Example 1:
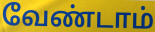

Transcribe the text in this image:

வேண்டாம்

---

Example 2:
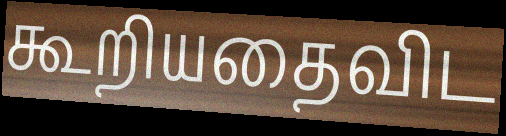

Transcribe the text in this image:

கூறியதைவிட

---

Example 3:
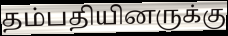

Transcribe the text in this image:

தம்பதியினருக்கு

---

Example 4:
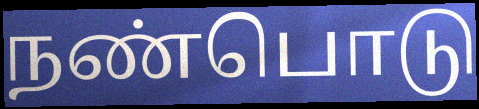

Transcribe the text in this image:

நண்பொடு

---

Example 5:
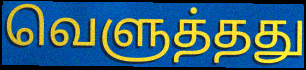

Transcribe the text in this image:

வெளுத்தது